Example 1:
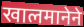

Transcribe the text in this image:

खालमानेने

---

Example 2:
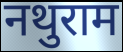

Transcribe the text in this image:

नथुराम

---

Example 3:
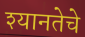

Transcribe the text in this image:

श्यानतेचे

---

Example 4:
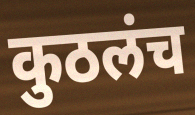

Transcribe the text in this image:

कुठलंच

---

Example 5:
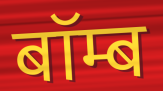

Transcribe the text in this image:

बॉम्ब